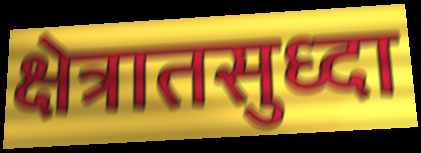
क्षेत्रातसुध्दा